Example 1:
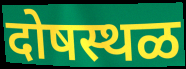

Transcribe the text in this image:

दोषस्थळ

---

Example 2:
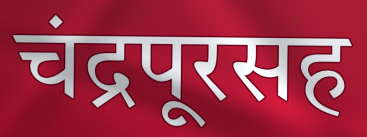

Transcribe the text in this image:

चंद्रपूरसह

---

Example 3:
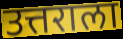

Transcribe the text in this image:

उत्तराला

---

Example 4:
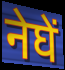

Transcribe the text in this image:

नेघें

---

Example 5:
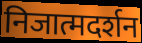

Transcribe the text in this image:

निजात्मदर्शन